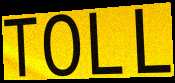
TOLL